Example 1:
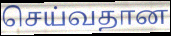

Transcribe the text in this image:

செய்வதான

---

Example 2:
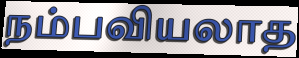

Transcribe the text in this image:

நம்பவியலாத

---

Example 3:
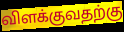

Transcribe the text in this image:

விளக்குவதற்கு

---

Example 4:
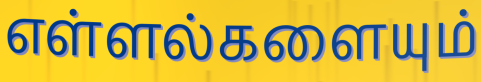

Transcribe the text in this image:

எள்ளல்களையும்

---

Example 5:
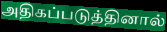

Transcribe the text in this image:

அதிகப்படுத்தினால்